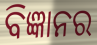
ବିଜ୍ଞାନର